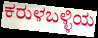
ಕರುಳಬಳ್ಳಿಯ